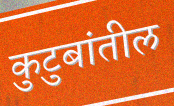
कुटुबांतील